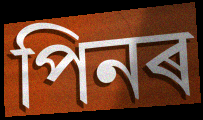
পিনৰ